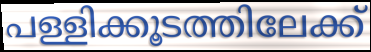
പള്ളിക്കൂടത്തിലേക്ക്